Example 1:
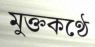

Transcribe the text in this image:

মুক্তকণ্ঠে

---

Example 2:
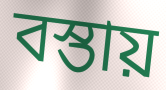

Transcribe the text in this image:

বস্তায়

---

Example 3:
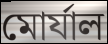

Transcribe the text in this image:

মোর্যাল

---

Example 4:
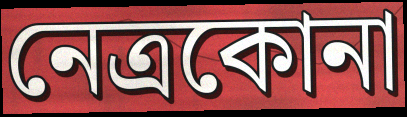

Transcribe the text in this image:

নেত্রকোনা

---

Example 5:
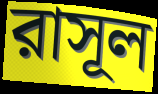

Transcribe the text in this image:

রাসূল